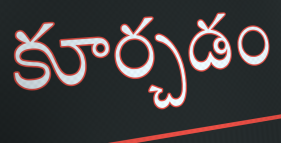
కూర్చడం